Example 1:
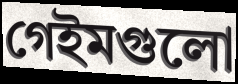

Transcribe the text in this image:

গেইমগুলো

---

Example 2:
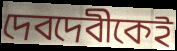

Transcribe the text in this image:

দেবদেবীকেই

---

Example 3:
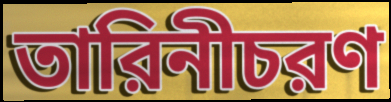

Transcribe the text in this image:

তারিনীচরণ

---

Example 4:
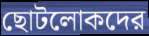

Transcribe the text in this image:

ছোটলোকদের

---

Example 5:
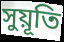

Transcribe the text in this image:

সুয়ূতি